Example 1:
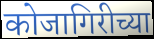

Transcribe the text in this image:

कोजागिरीच्या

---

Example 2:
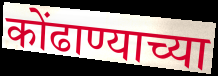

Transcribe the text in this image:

कोंढाण्याच्या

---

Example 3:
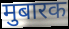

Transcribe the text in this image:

मुबारक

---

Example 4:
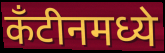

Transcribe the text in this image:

कँटीनमध्ये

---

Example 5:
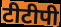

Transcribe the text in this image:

टीटीपी